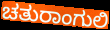
ಚತುರಾಂಗುಲಿ